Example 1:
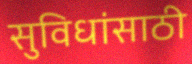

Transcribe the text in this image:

सुविधांसाठी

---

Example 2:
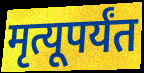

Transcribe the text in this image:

मृत्यूपर्यंत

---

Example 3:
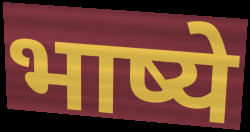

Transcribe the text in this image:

भाष्ये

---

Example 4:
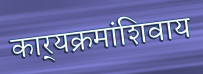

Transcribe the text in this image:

कार्यक्रमांशिवाय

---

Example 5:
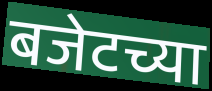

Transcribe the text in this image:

बजेटच्या